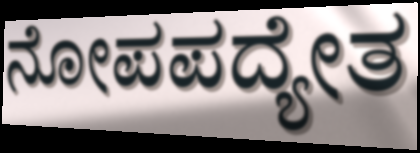
ನೋಪಪದ್ಯೇತ